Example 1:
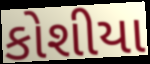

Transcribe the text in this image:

કોશીયા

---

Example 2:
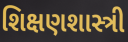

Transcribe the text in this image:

શિક્ષણશાસ્ત્રી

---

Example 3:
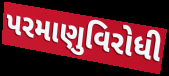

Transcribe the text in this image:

પરમાણુવિરોધી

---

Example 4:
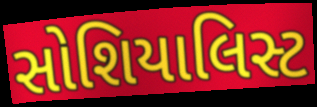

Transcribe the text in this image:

સોશિયાલિસ્ટ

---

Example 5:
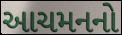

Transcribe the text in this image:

આચમનનો